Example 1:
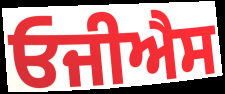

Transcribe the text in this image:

ਓਜੀਐਸ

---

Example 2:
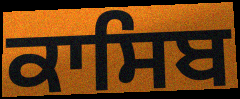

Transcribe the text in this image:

ਕਾਸਿਬ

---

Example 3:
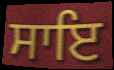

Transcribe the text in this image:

ਸਾਇ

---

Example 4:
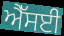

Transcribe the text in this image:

ਐੱਸਈ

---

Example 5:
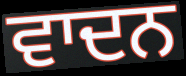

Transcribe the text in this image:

ਵਾਦਨ